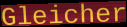
Gleicher